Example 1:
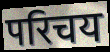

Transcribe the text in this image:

परिचय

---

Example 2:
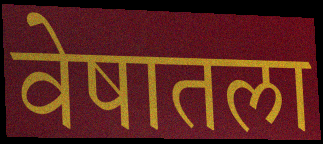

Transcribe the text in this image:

वेषातला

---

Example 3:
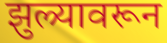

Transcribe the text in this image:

झुल्यावरून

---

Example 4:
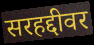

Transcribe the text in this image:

सरहद्दीवर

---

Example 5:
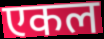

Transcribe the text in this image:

एकल